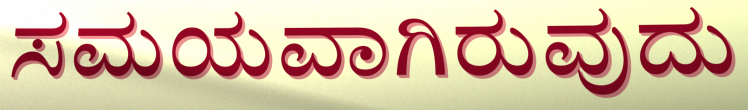
ಸಮಯವಾಗಿರುವುದು